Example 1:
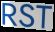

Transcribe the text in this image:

RST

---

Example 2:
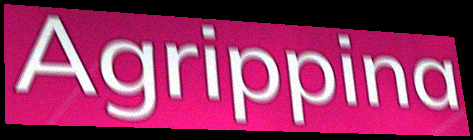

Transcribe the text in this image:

Agrippina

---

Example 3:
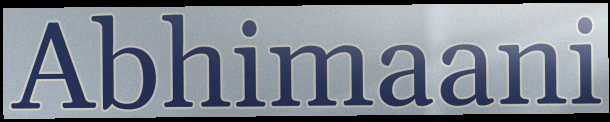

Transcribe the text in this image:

Abhimaani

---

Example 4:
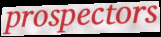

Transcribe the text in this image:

prospectors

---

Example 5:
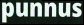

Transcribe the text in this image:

punnus